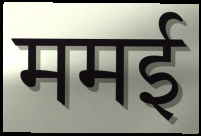
ममई